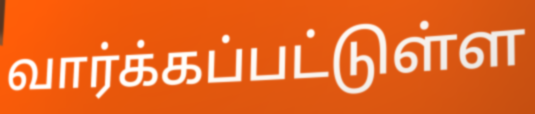
வார்க்கப்பட்டுள்ள